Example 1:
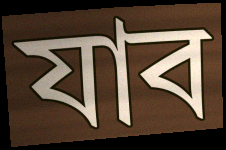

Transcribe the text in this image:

যাব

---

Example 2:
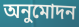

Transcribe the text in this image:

অনুমোদন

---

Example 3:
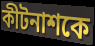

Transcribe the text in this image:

কীটনাশকে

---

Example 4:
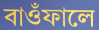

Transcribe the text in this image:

বাওঁফালে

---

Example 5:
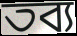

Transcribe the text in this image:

তব্য